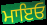
ਮਾਇਓ